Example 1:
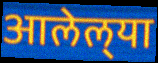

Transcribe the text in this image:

आलेल्या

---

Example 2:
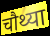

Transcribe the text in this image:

चौथ्या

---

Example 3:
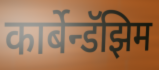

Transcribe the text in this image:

कार्बेन्डॅझिम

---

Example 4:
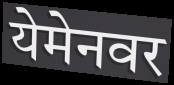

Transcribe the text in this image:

येमेनवर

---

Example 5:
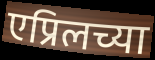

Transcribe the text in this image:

एप्रिलच्या